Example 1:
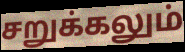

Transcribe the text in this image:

சறுக்கலும்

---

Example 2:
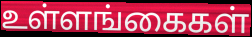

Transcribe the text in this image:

உள்ளங்கைகள்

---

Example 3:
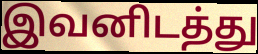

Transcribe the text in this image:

இவனிடத்து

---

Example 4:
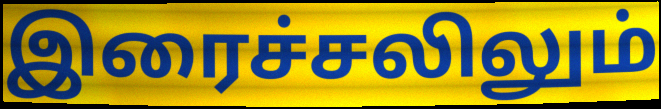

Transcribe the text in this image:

இரைச்சலிலும்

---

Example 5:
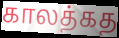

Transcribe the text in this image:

காலத்கத